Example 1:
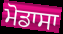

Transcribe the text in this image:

ਮੋਡਾਸਾ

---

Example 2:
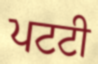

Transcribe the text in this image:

ਪਟਟੀ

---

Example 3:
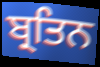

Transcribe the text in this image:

ਬ੍ਰਤਿਨ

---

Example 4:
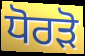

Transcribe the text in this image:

ਧੋਰੜੋ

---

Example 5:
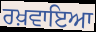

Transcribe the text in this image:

ਰਖ਼ਵਾਇਆ